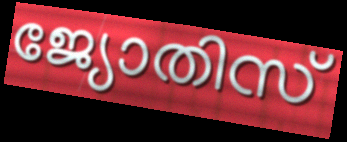
ജ്യോതിസ്